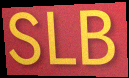
SLB